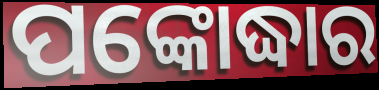
ପଙ୍କୋଦ୍ଧାର